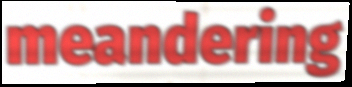
meandering